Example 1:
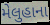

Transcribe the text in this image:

મેલુહાના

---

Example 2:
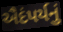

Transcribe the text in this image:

ઐદંપર્યનું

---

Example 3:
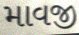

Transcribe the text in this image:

માવજી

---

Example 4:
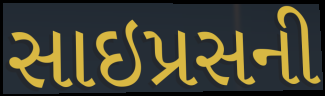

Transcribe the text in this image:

સાઇપ્રસની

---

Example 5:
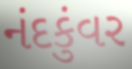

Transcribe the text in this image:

નંદકુંવર